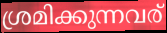
ശ്രമിക്കുന്നവര്